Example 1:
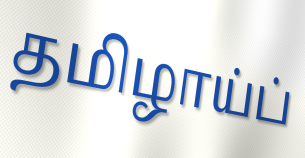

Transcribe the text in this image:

தமிழாய்ப்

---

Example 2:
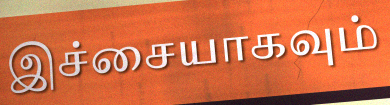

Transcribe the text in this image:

இச்சையாகவும்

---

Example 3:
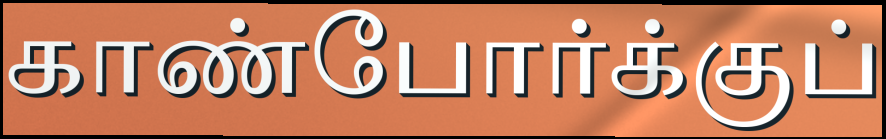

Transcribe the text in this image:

காண்போர்க்குப்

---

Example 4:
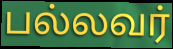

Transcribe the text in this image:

பல்லவர்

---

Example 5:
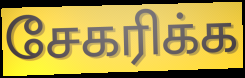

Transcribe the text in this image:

சேகரிக்க